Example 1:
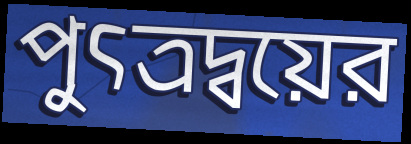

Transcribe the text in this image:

পুৎত্রদ্বয়ের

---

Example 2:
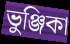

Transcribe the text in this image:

ভুঞ্জিকা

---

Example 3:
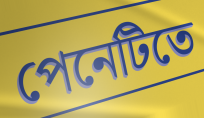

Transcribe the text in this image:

পেনেটিতে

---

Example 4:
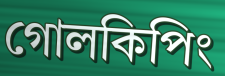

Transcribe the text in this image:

গোলকিপিং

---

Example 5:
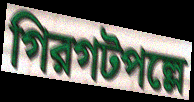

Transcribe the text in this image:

গিরগটপল্লে